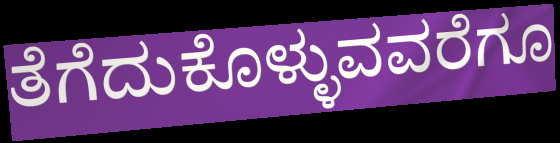
ತೆಗೆದುಕೊಳ್ಳುವವರೆಗೂ